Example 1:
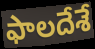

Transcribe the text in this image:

ఫాలదేశే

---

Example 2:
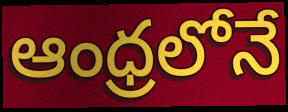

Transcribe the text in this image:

ఆంధ్రలోనే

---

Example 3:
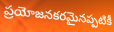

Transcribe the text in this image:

ప్రయోజనకరమైనప్పటికీ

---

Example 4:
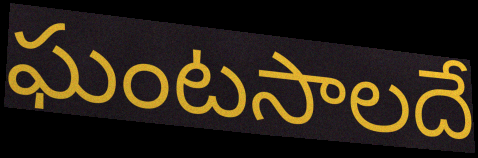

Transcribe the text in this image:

ఘంటసాలదే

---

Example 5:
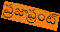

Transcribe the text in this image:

ప్రజాఫ్రంట్